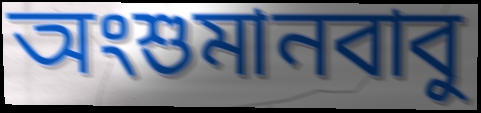
অংশুমানবাবু